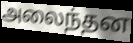
அலைந்தன